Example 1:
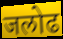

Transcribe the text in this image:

जलोढ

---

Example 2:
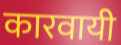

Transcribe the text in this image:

कारवायी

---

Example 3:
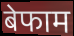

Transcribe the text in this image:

बेफाम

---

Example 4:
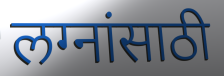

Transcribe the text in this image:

लग्नांसाठी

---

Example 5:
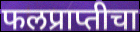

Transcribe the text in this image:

फलप्राप्तीचा